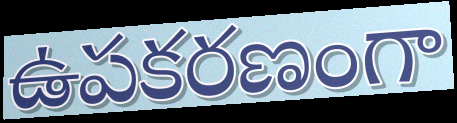
ఉపకరణంగా